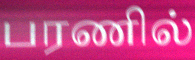
பரணில்